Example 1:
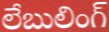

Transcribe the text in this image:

లేబులింగ్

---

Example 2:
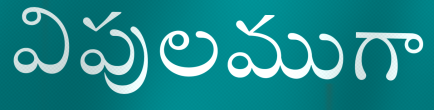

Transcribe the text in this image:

విపులముగా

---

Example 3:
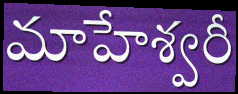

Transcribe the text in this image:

మాహేశ్వరీ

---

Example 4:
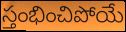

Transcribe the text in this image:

స్తంభించిపోయే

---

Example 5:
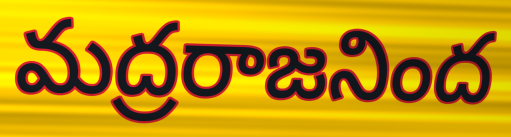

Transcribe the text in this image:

మద్రరాజనింద